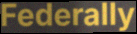
Federally